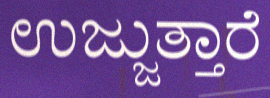
ಉಜ್ಜುತ್ತಾರೆ